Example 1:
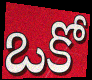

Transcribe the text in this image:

ఒకో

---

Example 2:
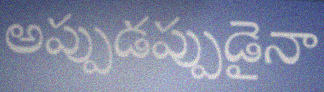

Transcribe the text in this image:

అప్పుడప్పుడైనా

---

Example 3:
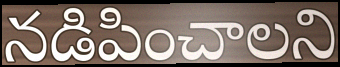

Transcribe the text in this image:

నడిపించాలని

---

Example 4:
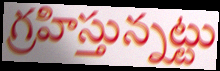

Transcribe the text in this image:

గ్రహిస్తున్నట్టు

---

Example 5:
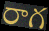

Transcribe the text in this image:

రాగ